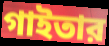
গাইতার